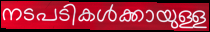
നടപടികൾക്കായുള്ള